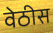
वेठीस